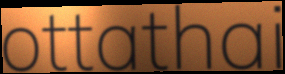
ottathai